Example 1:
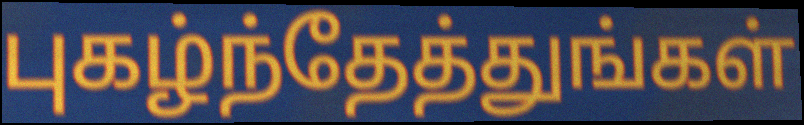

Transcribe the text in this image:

புகழ்ந்தேத்துங்கள்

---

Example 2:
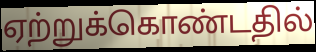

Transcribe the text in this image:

ஏற்றுக்கொண்டதில்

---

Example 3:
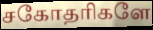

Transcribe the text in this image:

சகோதரிகளே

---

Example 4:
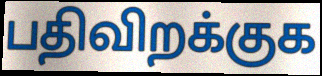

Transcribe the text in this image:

பதிவிறக்குக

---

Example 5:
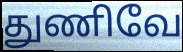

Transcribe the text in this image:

துணிவே